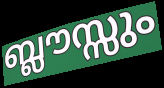
ബ്ലൗസ്സും